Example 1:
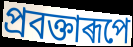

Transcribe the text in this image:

প্ৰবক্তাৰূপে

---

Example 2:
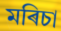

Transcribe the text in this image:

মৰিচা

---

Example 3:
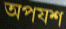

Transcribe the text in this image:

অপযশ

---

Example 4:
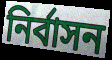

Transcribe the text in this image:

নিৰ্বাসন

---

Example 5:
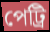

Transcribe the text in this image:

পেট্ৰি